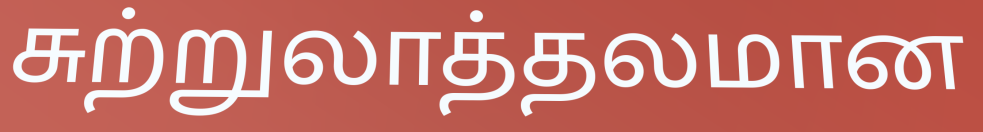
சுற்றுலாத்தலமான